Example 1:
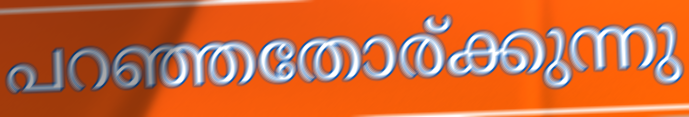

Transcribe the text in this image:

പറഞ്ഞതോര്ക്കുന്നു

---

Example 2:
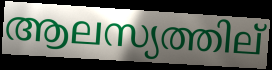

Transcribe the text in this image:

ആലസ്യത്തില്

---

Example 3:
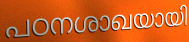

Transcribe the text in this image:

പഠനശാഖയായി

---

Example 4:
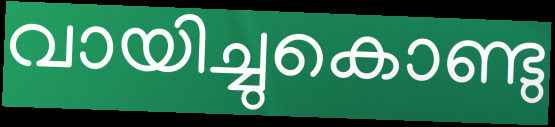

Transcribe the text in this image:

വായിച്ചുകൊണ്ടു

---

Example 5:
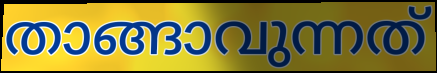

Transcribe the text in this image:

താങ്ങാവുന്നത്